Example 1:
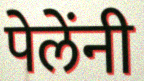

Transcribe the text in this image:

पेलेंनी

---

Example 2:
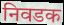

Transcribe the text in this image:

निवडक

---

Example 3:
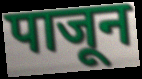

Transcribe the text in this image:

पाजून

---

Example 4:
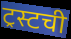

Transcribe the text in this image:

ट्रस्टची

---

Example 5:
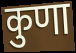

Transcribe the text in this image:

कुणा